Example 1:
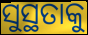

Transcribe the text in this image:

ସୁସ୍ଥତାକୁ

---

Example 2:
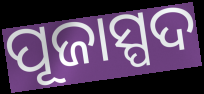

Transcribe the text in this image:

ପୂଜାସ୍ପଦ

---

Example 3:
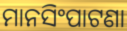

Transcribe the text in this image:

ମାନସିଂପାଟଣା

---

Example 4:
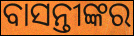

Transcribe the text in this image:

ବାସନ୍ତୀଙ୍କର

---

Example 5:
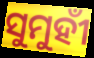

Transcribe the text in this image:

ସୁମୁହୀଁ